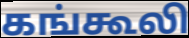
கங்கூலி